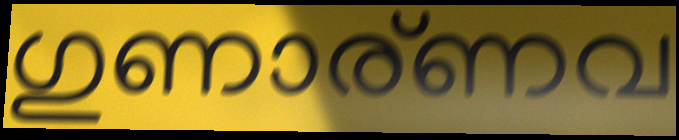
ഗുണാര്ണവ